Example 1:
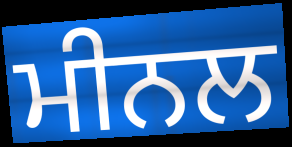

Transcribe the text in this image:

ਮੀਨਲ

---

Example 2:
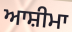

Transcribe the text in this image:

ਆਸ਼ੀਮਾ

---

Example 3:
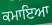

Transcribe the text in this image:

ਕਮਾਇਆ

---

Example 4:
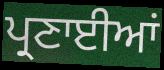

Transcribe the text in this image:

ਪ੍ਰਣਾਈਆਂ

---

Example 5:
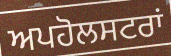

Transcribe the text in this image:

ਅਪਹੋਲਸਟਰਾਂ